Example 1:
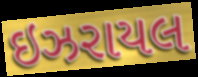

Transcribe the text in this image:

ઇઝરાયલ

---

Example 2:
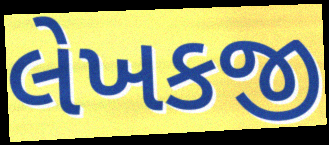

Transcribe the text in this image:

લેખકજી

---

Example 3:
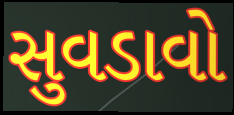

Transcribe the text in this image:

સુવડાવો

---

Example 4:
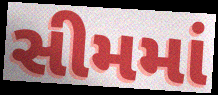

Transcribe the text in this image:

સીમમાં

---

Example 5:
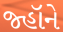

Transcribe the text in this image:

જ્હૉને